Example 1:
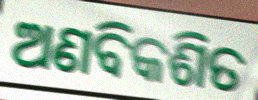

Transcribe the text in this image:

ଅଣବିକଶିତ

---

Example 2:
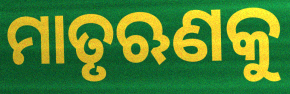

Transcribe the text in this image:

ମାତୃଋଣକୁ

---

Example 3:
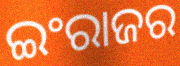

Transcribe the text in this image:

ଇଂରାଜର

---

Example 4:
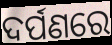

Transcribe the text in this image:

ଦର୍ପଣରେ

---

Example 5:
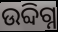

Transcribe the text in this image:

ଉବ୍ଦିଗ୍ନ